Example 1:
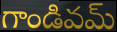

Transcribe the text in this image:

గాండివమ్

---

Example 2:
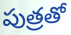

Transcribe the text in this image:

పుత్రతో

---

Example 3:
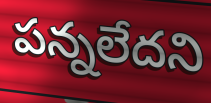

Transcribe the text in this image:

పన్నలేదని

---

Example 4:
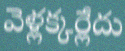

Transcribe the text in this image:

వెళ్లక్కర్లేదు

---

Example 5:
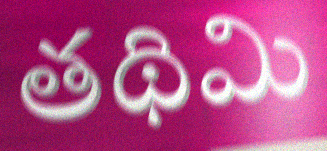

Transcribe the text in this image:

తథిమి